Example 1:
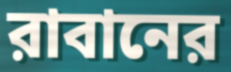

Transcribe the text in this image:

রাবানের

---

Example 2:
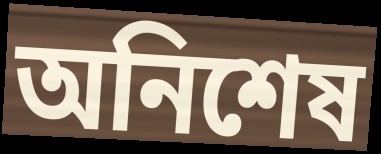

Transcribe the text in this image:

অনিশেষ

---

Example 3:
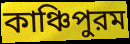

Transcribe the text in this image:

কাঞ্চিপুরম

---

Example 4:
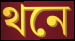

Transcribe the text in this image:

থনে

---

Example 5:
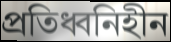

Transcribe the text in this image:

প্রতিধ্বনিহীন